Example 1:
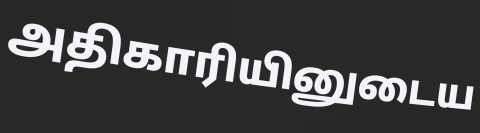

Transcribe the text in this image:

அதிகாரியினுடைய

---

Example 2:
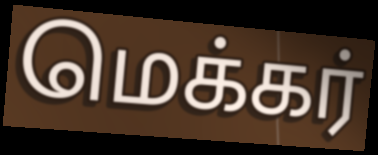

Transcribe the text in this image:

மெக்கர்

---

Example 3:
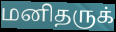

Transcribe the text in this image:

மனிதருக்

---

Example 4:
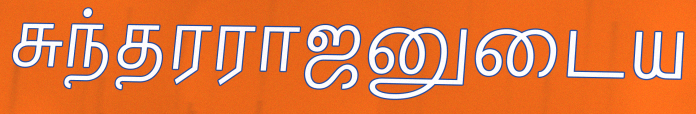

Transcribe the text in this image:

சுந்தரராஜனுடைய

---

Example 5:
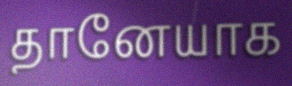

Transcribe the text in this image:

தானேயாக